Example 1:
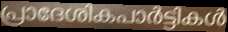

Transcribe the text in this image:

പ്രാദേശികപാർട്ടികൾ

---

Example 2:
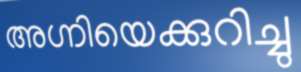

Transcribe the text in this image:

അഗ്നിയെക്കുറിച്ചു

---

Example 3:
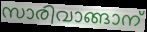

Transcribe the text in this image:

സാരിവാങ്ങാന്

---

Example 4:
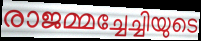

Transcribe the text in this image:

രാജമ്മച്ചേച്ചിയുടെ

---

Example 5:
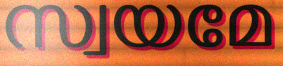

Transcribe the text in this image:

സ്വയമേ